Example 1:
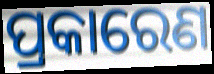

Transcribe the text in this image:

ପ୍ରକାରେଣ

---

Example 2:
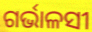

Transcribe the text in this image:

ଗର୍ଭାଳସୀ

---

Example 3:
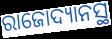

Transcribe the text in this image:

ରାଜୋଦ୍ୟାନସ୍ଥ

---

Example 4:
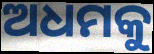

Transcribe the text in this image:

ଅଧମକୁ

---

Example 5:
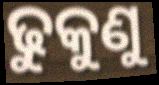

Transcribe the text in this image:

ଢୁକୁଣୁ